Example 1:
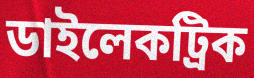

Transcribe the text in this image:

ডাইলেকট্রিক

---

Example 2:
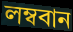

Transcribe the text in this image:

লম্ববান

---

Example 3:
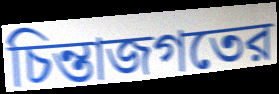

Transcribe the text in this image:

চিন্তাজগতের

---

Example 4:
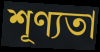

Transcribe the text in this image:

শূণ্যতা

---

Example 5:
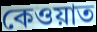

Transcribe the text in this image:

কেওয়াত